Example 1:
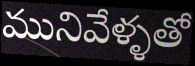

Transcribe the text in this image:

మునివేళ్ళతో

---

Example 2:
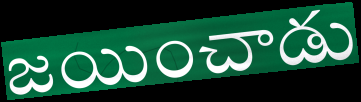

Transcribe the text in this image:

జయించాడు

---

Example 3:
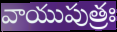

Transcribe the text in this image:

వాయుపుత్రః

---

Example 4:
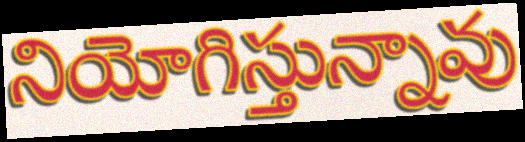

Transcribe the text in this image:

నియోగిస్తున్నావు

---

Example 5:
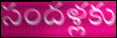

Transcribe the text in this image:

సందళ్లకు